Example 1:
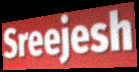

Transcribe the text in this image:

Sreejesh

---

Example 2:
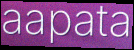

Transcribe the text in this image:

aapata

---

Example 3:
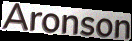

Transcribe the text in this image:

Aronson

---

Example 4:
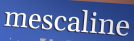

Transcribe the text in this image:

mescaline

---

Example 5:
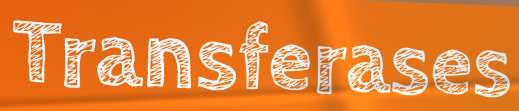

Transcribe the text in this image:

Transferases